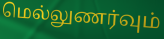
மெல்லுணர்வும்